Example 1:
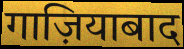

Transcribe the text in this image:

गाज़ियाबाद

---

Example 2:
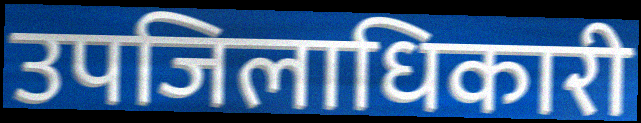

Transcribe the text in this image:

उपजिलाधिकारी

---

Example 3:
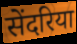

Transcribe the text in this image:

सेंदरिया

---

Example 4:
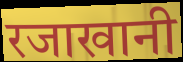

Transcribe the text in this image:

रजाखानी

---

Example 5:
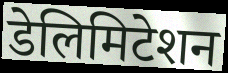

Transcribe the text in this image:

डेलिमिटेशन